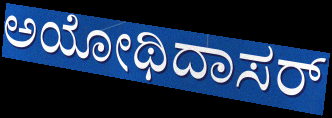
ಅಯೋಥಿದಾಸರ್